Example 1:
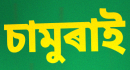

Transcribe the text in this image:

চামুৰাই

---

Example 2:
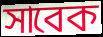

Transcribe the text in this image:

সাবেক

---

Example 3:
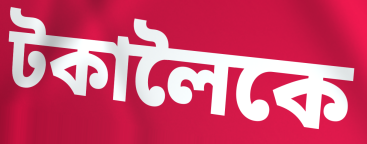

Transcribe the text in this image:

টকালৈকে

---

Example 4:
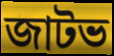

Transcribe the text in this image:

জাটভ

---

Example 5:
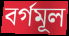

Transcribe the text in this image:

বৰ্গমূল